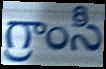
గ్రాంసీ